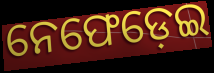
ନେଫେଡ଼େଇ